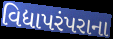
વિદ્યાપરંપરાના